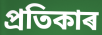
প্ৰতিকাৰ